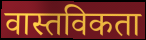
वास्तविकता